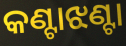
କଣ୍ଟାଝଣ୍ଟା